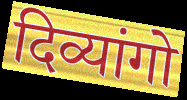
दिव्यांगो